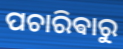
ପଚାରିଵାରୁ